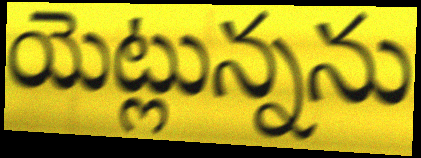
యెట్లున్నను